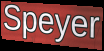
Speyer